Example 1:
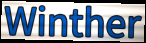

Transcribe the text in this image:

Winther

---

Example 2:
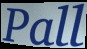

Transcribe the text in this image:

Pall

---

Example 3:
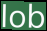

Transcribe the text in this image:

Iob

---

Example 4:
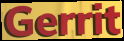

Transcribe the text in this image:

Gerrit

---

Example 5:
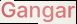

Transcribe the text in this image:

Gangar